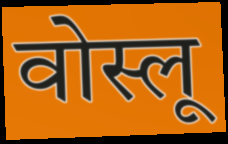
वोस्लू